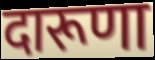
दारूणा